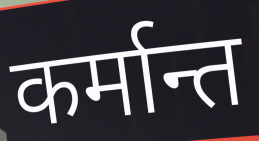
कर्मान्त